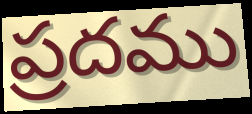
ప్రదము